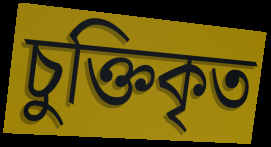
চুক্তিকৃত